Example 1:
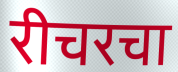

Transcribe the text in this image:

रीचरचा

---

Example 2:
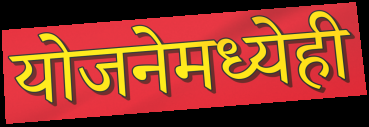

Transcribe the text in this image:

योजनेमध्येही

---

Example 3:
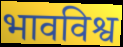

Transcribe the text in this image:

भावविश्व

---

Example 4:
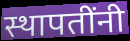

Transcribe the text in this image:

स्थापतींनी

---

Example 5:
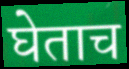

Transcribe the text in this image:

घेताच